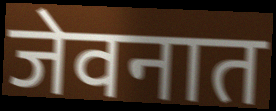
जेवनात